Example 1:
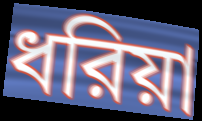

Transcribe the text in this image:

ধরিয়া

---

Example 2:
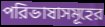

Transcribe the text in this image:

পরিভাষাসমূহের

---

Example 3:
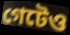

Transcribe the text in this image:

গেটেও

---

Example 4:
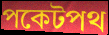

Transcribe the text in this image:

পকেটপথ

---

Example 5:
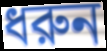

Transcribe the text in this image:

ধরুন